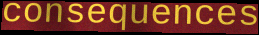
consequences